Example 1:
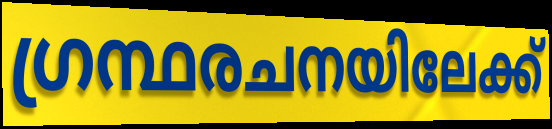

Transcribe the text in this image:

ഗ്രന്ഥരചനയിലേക്ക്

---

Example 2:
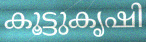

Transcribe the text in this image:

കൂട്ടുകൃഷി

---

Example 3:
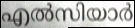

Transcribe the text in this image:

എൽസിയാർ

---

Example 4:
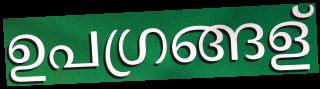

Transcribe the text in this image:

ഉപഗ്രങ്ങള്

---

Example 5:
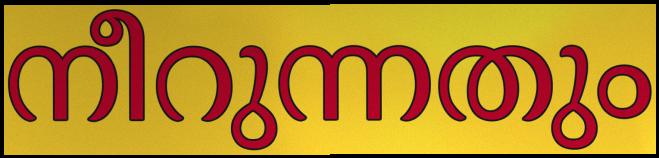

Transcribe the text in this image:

നീറുന്നതും